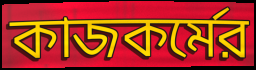
কাজকর্মের